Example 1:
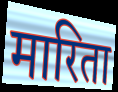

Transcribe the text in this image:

मारिता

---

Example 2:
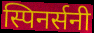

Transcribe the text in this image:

स्पिनर्सनी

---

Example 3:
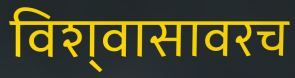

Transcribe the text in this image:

विश्वासावरच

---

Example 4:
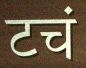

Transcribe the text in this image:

टचं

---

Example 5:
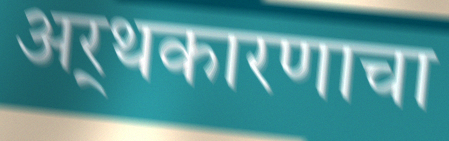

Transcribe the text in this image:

अर्थकारणाचा